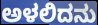
ಅಳಲಿದನು